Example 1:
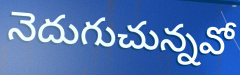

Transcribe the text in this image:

నెదుగుచున్నవో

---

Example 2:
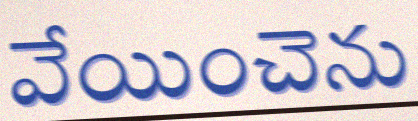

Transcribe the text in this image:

వేయించెను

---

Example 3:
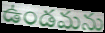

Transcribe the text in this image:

ఉండమను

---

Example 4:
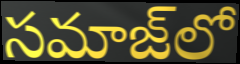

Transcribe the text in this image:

సమాజ్‌లో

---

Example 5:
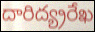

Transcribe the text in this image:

దారిద్య్రరేఖ